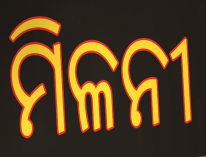
ମିଳନୀ